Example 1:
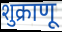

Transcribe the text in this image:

शुक्राणू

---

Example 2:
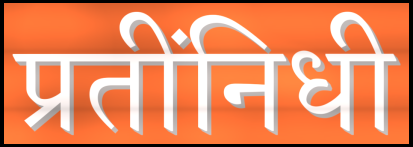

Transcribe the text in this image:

प्रतींनिधी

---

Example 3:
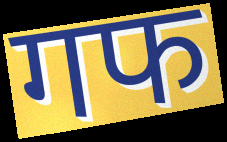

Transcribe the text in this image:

गफ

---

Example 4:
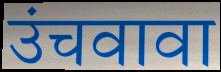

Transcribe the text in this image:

उंचवावा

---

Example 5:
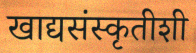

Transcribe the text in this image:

खाद्यसंस्कृतीशी